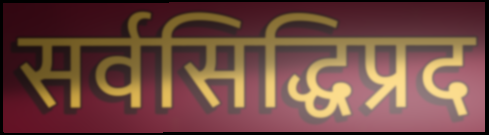
सर्वसिद्धिप्रद